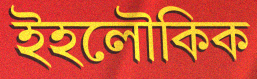
ইহলৌকিক